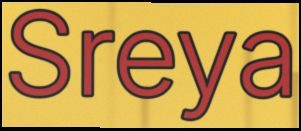
Sreya